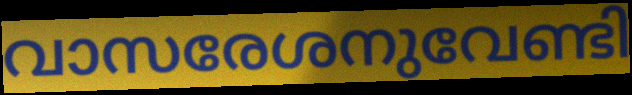
വാസരേശനുവേണ്ടി